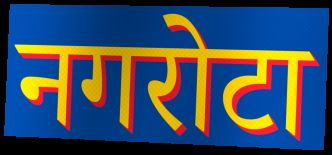
नगरोटा